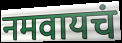
नमवायचं